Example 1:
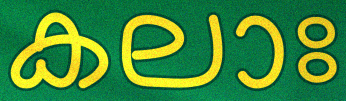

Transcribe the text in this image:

കലാഃ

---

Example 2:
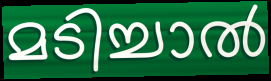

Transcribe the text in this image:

മടിച്ചാൽ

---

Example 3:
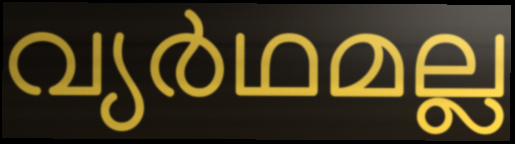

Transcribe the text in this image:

വ്യർഥമല്ല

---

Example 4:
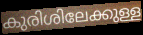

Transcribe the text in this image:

കുരിശിലേക്കുള്ള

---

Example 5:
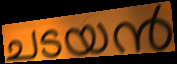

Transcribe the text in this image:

ചടയൻ